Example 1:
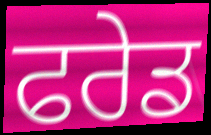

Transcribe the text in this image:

ਫਰੇਡ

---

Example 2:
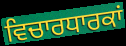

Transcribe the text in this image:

ਵਿਚਾਰਧਾਰਕਾਂ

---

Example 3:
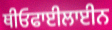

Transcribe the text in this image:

ਥੀਓਫਾਈਲਾਈਨ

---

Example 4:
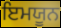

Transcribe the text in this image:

ਇਮਯੂਨ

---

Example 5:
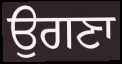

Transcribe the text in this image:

ਉਗਣਾ